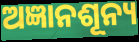
ଅଜ୍ଞାନଶୂନ୍ୟ